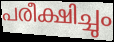
പരീക്ഷിച്ചും